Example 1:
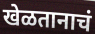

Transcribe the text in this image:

खेळतानाचं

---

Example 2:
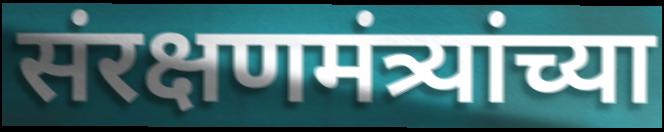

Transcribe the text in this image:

संरक्षणमंत्र्यांच्या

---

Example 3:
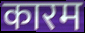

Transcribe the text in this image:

कारम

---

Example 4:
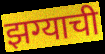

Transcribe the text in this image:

झग्याची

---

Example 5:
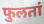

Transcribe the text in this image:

फुलतां